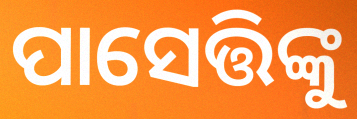
ପାସେତ୍ତିଙ୍କୁ